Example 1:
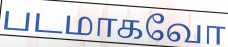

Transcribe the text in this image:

படமாகவோ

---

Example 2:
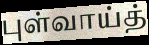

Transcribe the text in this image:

புள்வாய்த்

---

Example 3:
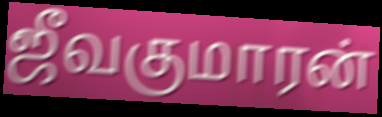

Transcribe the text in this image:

ஜீவகுமாரன்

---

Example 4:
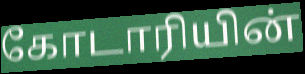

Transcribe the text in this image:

கோடாரியின்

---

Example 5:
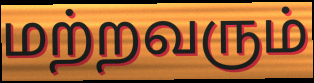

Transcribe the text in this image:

மற்றவரும்